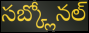
సబ్క్లోనల్